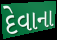
દેવાના